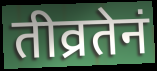
तीव्रतेनं